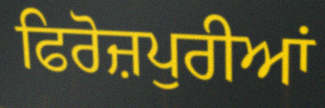
ਫਿਰੋਜ਼ਪੁਰੀਆਂ